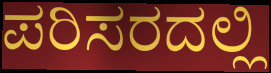
ಪರಿಸರದಲ್ಲಿ